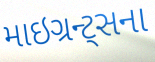
માઇગ્રન્ટ્સના